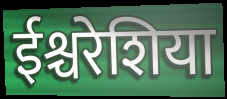
ईश्चरेशिया